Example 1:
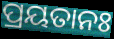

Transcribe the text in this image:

ପ୍ରୟତାନଃ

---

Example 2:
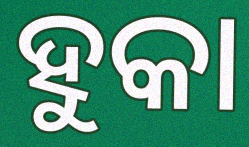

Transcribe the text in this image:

ହୁକା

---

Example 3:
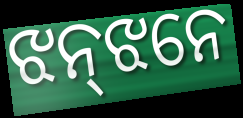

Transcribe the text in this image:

ଝନ୍‌ଝନେ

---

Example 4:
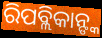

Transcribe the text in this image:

ରିପବ୍ଲିକାନ୍ଙ୍କ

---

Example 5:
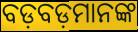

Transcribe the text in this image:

ବଡ଼ବଡ଼ମାନଙ୍କ